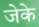
जेके